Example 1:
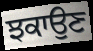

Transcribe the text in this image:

ਝਕਾਉਣ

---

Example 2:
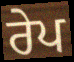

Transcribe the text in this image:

ਰੇਪ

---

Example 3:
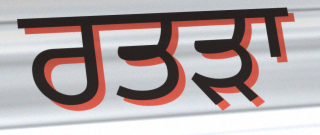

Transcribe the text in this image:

ਰਤੜਾ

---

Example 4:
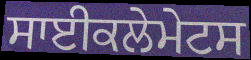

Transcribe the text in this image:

ਸਾਈਕਲੇਮੇਟਸ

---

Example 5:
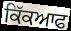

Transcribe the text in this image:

ਕਿੱਕਆਫ